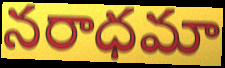
నరాధమా